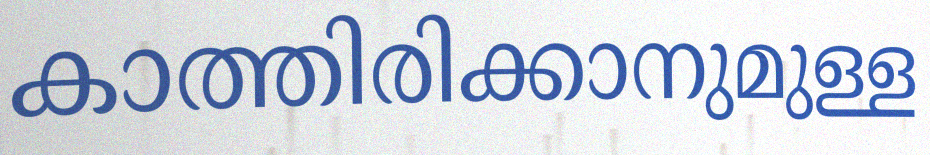
കാത്തിരിക്കാനുമുള്ള